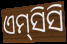
ଏମ୍‌ସିସି